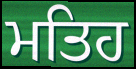
ਮਤਿਹ